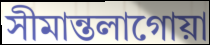
সীমান্তলাগোয়া